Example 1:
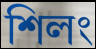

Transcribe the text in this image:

শিলং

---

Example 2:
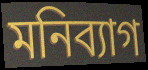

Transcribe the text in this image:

মনিব্যাগ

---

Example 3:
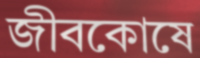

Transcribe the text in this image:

জীবকোষে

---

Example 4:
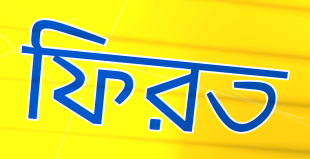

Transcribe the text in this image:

ফিরত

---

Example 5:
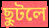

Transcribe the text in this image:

ছুটলে